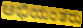
ಅಭಿಯಂತರು